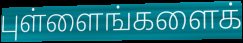
புள்ளைங்களைக்